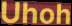
Uhoh